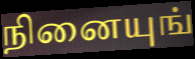
நினையுங்